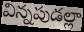
విన్నపుడల్లా